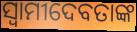
ସ୍ୱାମୀଦେବତାଙ୍କ